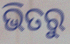
ଭିତରୁ